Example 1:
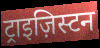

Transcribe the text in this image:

ट्राइज़िस्टन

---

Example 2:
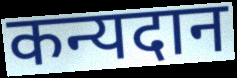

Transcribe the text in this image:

कन्यदान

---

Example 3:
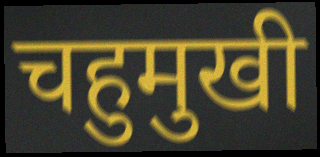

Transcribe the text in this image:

चहुमुखी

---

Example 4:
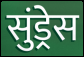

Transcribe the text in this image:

सुंड्रेस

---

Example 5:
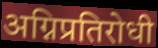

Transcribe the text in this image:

अग्निप्रतिरोधी